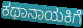
ಕಥಾನಾಯಕಿಗೆ